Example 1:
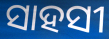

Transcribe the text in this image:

ସାହସୀ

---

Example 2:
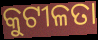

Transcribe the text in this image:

କୁଟୀଳତା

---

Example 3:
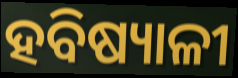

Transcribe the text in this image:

ହବିଷ୍ୟାଳୀ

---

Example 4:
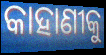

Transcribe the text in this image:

କାହାଣୀକୁ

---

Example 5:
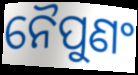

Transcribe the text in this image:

ନୈପୁଣଂ